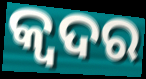
କ୍ୱଦର